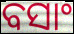
ବସାଂ